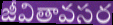
జీవితావసర